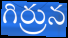
గిర్రున